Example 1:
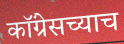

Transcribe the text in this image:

कॉंग्रेसच्याच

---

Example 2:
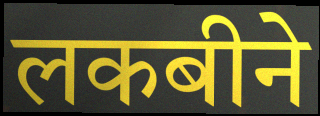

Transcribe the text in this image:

लकबीने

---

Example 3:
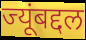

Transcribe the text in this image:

ज्यूंबद्दल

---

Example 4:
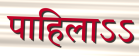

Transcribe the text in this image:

पाहिलाऽऽ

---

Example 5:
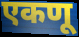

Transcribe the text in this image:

एकणू